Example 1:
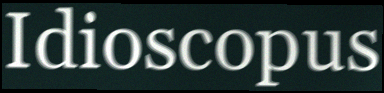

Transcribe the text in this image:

Idioscopus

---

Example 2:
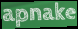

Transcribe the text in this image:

apnake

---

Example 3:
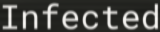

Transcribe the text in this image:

Infected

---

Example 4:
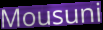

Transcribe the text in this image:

Mousuni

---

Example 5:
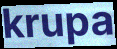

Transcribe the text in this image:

krupa